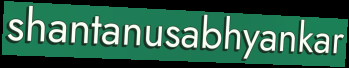
shantanusabhyankar